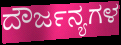
ದೌರ್ಜನ್ಯಗಳ